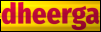
dheerga